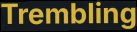
Trembling